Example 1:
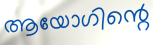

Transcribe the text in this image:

ആയോഗിന്റെ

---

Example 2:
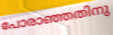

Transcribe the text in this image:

പോരാഞ്ഞതിനു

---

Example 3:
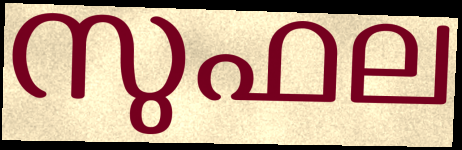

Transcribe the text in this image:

സുഫല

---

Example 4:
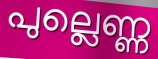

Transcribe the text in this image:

പുല്ലെണ്ണ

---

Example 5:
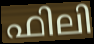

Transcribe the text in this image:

ഫിലി